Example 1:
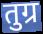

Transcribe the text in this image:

तुग्र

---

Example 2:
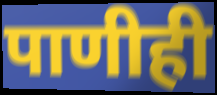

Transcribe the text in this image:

पाणीही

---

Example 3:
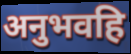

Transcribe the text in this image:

अनुभवहि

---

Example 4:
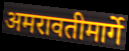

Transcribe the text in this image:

अमरावतीमार्गे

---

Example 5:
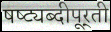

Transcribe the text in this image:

षष्ट्यब्दीपूर्ती